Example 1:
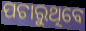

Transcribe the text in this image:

ପଚାରୁଥିବେ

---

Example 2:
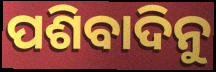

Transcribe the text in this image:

ପଶିବାଦିନୁ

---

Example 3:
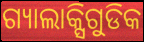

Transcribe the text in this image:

ଗ୍ୟାଲାକ୍ସିଗୁଡିକ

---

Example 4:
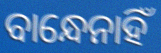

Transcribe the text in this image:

ବାନ୍ଧେନାହିଁ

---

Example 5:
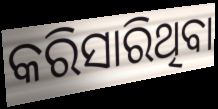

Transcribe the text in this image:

କରିସାରିଥିବା